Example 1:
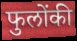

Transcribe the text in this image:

फुलोंकी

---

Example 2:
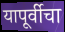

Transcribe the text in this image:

यापूर्वीचा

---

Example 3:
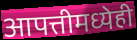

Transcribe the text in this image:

आपत्तीमध्येही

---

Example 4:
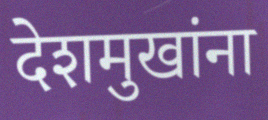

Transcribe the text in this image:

देशमुखांना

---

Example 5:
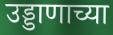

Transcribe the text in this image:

उड्डाणाच्या